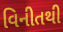
વિનીતથી